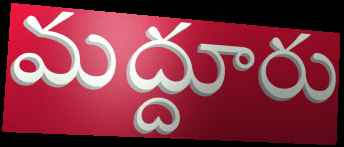
మద్దూరు